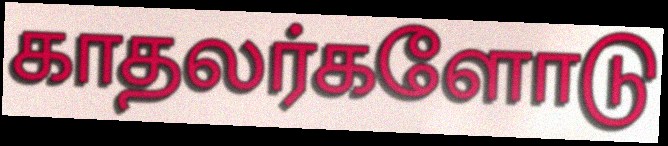
காதலர்களோடு